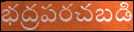
భద్రపరచబడి